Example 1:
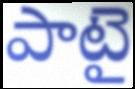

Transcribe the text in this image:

పాటై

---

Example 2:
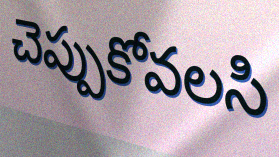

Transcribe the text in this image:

చెప్పుకోవలసి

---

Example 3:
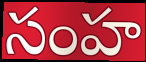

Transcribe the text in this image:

సంహ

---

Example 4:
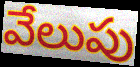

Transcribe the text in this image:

వేలుపు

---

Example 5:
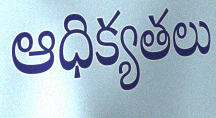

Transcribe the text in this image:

ఆధిక్యతలు